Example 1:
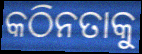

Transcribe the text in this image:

କଠିନତାକୁ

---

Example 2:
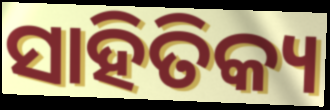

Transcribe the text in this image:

ସାହିତିକ୍ୟ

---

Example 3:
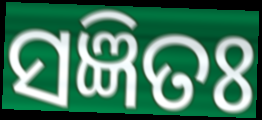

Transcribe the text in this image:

ସଜ୍ଞିତଃ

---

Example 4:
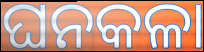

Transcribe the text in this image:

ଘନକଳା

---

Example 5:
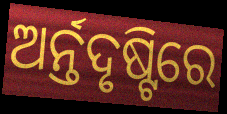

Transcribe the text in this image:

ଅର୍ନ୍ତଦୃଷ୍ଟିରେ